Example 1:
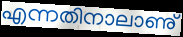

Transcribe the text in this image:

എന്നതിനാലാണു്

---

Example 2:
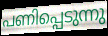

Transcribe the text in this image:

പണിപ്പെടുന്നു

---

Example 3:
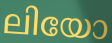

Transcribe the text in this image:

ലിയോ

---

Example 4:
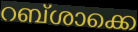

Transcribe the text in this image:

റബ്ശാക്കെ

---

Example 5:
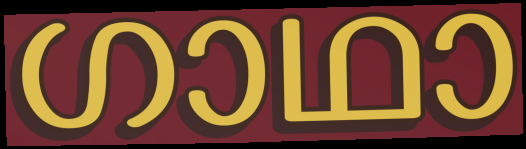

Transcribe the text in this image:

ഗാഥാ